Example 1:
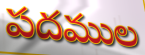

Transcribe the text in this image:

పదముల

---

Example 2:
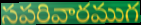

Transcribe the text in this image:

సపరివారముగ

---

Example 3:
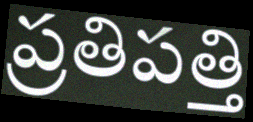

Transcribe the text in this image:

ప్రతిపత్తి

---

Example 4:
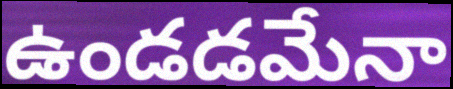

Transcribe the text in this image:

ఉండడమేనా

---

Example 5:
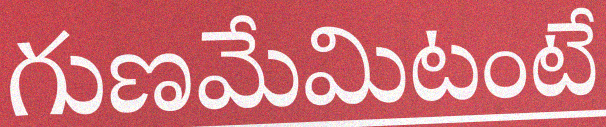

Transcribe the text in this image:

గుణమేమిటంటే